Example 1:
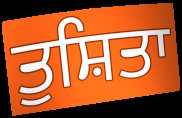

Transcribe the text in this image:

ਤੁਸ਼ਿਤਾ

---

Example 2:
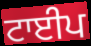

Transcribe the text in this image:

ਟਾਈਪ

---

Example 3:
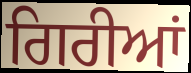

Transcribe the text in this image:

ਗਿਰੀਆਂ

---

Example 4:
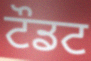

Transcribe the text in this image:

ਟੌਡਟ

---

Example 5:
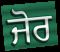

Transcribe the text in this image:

ਜੋਰ